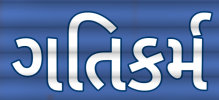
ગતિકર્મ